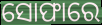
ସୋଫାରେ